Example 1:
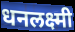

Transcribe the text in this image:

धनलक्ष्मी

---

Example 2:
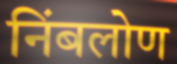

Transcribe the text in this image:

निंबलोण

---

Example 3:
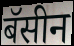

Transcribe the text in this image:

बॅसीन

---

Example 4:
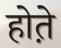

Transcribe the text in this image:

होत़े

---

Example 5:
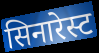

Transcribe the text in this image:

सिनारेस्ट